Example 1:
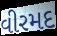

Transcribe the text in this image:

વીરમદ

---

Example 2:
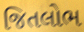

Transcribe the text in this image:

જિતલોભ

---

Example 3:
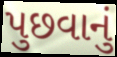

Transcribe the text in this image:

પુછવાનું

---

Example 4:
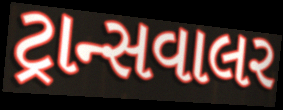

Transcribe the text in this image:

ટ્રાન્સવાલર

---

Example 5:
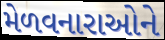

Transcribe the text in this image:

મેળવનારાઓને